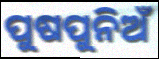
ପୁଷପୁନିଅଁ